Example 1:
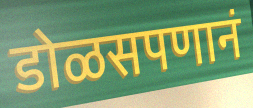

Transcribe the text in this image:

डोळसपणानं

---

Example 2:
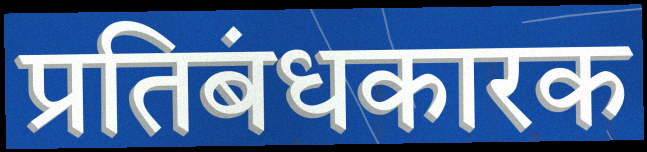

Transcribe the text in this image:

प्रतिबंधकारक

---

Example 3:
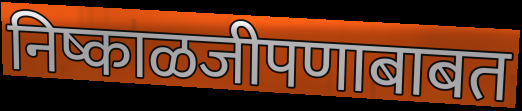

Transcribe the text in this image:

निष्काळजीपणाबाबत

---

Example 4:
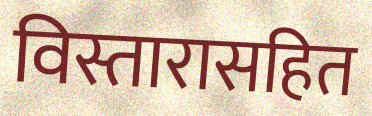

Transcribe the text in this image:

विस्तारासहित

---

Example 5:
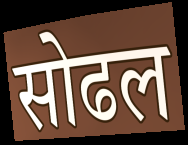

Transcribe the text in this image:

सोढल